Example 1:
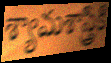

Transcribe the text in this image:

శ్యామశాస్త్రికి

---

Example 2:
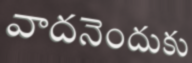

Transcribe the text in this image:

వాదనెందుకు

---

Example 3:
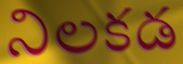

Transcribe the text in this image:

నిలకడ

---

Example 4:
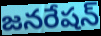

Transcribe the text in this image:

జనరేషన్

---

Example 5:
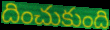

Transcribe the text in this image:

దించుకుంది